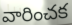
వారించక